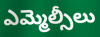
ఎమ్మెల్సీలు